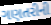
ગણતરીની